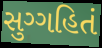
સુગ્ગહિતં